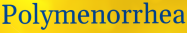
Polymenorrhea